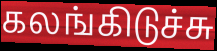
கலங்கிடுச்சு